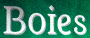
Boies